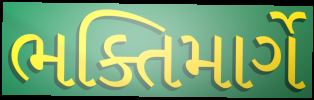
ભક્તિમાર્ગે